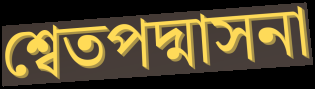
শ্বেতপদ্মাসনা